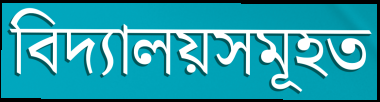
বিদ্যালয়সমূহত